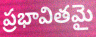
ప్రభావితమై